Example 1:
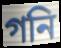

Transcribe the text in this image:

গনি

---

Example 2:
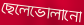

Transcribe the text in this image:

ছেলেভোলানো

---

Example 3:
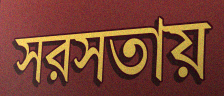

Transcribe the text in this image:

সরসতায়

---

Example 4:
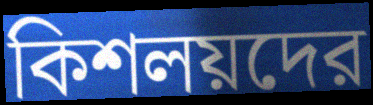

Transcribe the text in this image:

কিশলয়দের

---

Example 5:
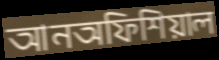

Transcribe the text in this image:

আনঅফিশিয়াল